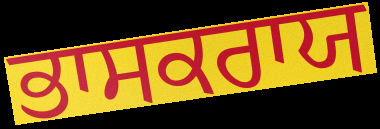
ਭਾਸਕਰਾਯ